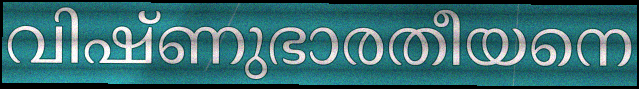
വിഷ്ണുഭാരതീയനെ